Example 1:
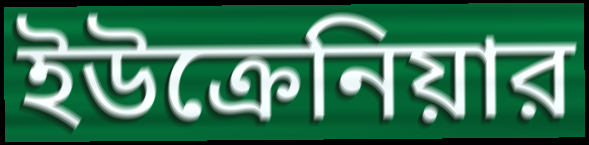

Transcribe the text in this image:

ইউক্রেনিয়ার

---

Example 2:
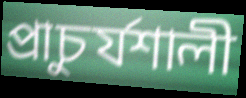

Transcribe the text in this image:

প্রাচুর্যশালী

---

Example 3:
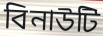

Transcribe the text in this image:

বিনাউটি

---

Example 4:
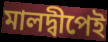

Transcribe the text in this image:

মালদ্বীপেই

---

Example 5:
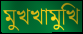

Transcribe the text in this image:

মুখখামুখি